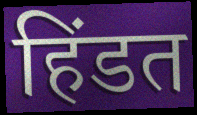
हिंडत